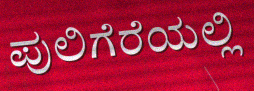
ಪುಲಿಗೆರೆಯಲ್ಲಿ